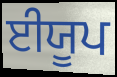
ਈਯੂਪ